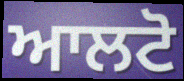
ਆਲਟੋ